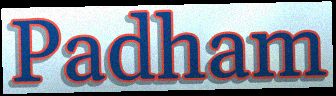
Padham